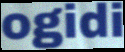
ogidi